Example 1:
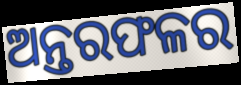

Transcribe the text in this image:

ଅନ୍ତରଫଳର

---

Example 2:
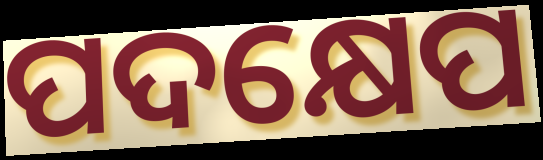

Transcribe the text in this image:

ପଦକ୍ଷେପ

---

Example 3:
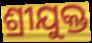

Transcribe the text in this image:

ଶ୍ରୀଯୁକ୍ତ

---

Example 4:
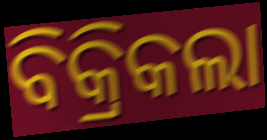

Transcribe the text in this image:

ବିକ୍ରିକଲା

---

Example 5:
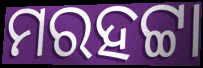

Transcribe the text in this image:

ମରହଟ୍ଟା